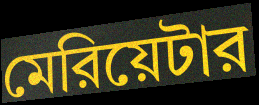
মেরিয়েটার